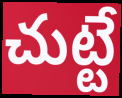
చుట్టే